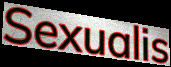
Sexualis